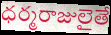
ధర్మరాజులైతే